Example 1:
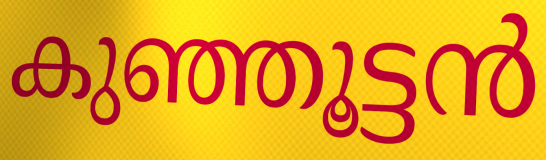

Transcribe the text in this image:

കുഞ്ഞൂട്ടൻ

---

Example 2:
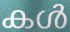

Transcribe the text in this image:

കൾ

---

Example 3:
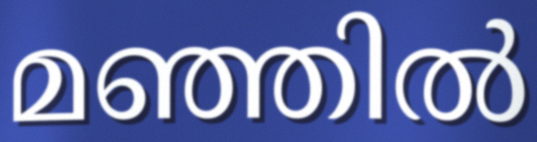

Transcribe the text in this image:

മഞ്ഞിൽ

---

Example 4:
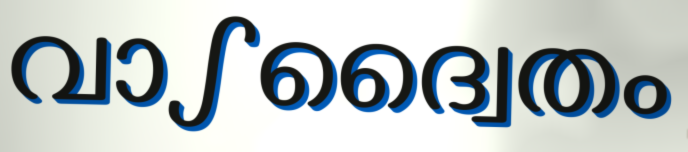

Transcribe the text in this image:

വാഽദ്വൈതം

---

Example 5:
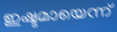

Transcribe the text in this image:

ഇഷ്ടമായെന്ന്